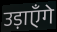
उड़ाएँगे